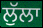
ਲੁੱਲਾ